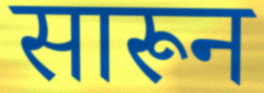
सारून